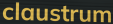
claustrum